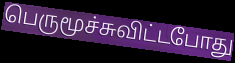
பெருமூச்சுவிட்டபோது